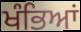
ਖੰਭਿਆਂ